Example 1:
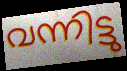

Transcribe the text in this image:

വന്നിട്ടു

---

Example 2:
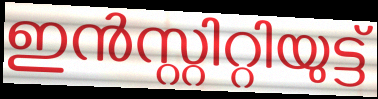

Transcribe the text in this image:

ഇൻസ്റ്റിറ്റിയുട്ട്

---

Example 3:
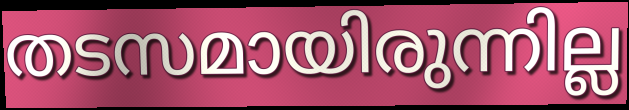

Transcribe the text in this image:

തടസമായിരുന്നില്ല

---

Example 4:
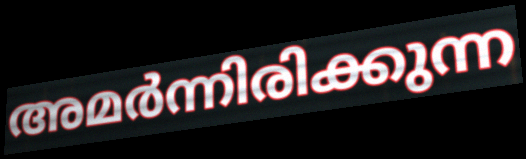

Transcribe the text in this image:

അമർന്നിരിക്കുന്ന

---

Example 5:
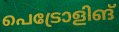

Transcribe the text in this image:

പെട്രോളിങ്